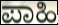
ಪಾಹಿ